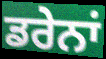
ਡਰੇਨਾਂ